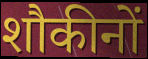
शौकीनों